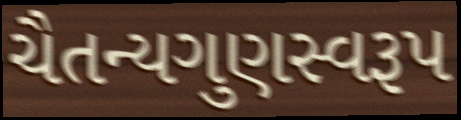
ચૈતન્યગુણસ્વરૂપ